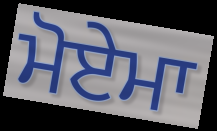
ਮੋਏਮਾ